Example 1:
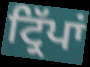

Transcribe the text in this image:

ਟ੍ਰਿੱਪਾਂ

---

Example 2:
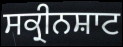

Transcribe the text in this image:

ਸਕ੍ਰੀਨਸ਼ਾਟ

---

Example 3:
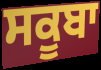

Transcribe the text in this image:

ਸਕੂਬਾ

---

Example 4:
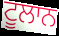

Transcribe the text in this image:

ਟੂਲਾਨ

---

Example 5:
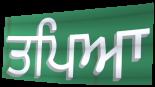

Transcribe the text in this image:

ਤਪਿਆ